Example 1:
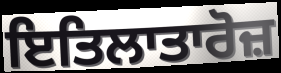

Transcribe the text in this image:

ਇਤਿਲਾਤਾਰੋਜ਼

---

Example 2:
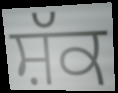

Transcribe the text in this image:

ਸ਼ੱਕ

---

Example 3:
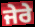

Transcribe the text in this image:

ਜੇਰੇ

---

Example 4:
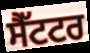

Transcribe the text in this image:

ਸੈੱਟਟਰ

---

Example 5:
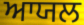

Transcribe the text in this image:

ਆਯਲ